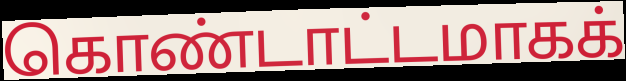
கொண்டாட்டமாகக்